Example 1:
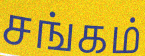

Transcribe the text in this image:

சங்கம்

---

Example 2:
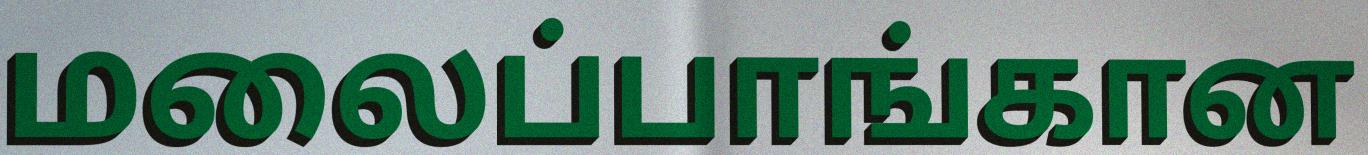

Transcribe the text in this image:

மலைப்பாங்கான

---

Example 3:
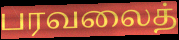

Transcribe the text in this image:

பரவலைத்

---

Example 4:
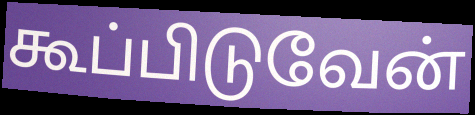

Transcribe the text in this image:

கூப்பிடுவேன்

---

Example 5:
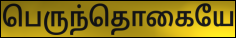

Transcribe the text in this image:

பெருந்தொகையே